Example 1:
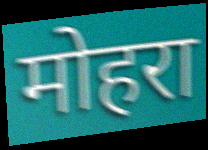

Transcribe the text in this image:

मोहरा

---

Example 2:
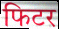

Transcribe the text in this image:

फिटर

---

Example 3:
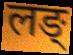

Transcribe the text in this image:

लङ्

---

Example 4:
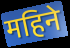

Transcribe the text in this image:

महिने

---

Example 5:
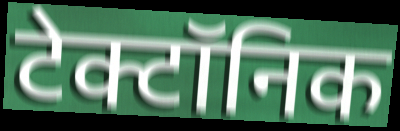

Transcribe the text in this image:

टेक्टॉनिक